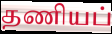
தணியப்